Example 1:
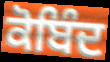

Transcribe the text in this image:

ਕੋਬਿੰਦ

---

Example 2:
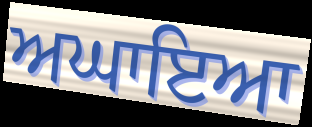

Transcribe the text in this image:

ਅਘਾਇਆ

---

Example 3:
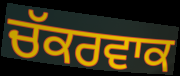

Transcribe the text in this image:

ਚੱਕਰਵਾਕ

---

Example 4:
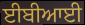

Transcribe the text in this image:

ਈਬੀਆਈ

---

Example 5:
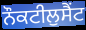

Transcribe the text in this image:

ਨੌਕਟੀਲੁਸੈਂਟ